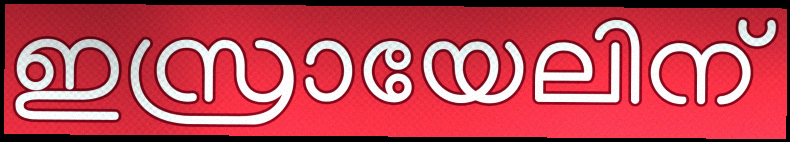
ഇസ്രായേലിന്